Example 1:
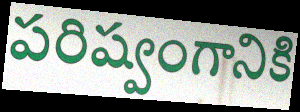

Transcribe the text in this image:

పరిష్వంగానికి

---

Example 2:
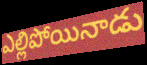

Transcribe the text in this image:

ఎల్లిపోయినాడు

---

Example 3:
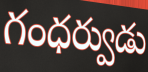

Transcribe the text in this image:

గంధర్వుడు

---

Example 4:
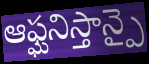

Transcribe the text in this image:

ఆఫ్ఘనిస్తాన్పై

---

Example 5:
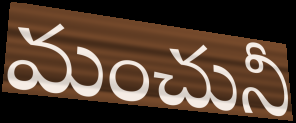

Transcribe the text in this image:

మంచునీ